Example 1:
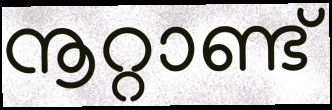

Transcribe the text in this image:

നൂറ്റാണ്ട്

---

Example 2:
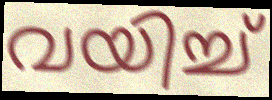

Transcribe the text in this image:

വയിച്ച്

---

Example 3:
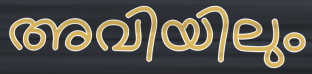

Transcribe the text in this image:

അവിയിലും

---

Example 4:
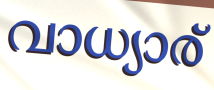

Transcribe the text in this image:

വാധ്യാര്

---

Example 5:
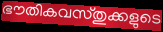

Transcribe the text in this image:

ഭൗതികവസ്തുക്കളുടെ